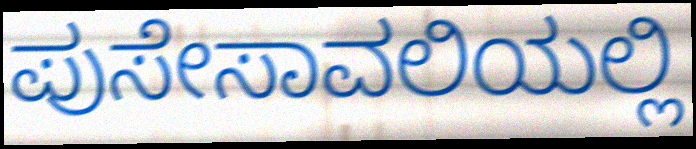
ಪುಸೇಸಾವಲಿಯಲ್ಲಿ